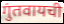
गुंतवायची